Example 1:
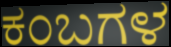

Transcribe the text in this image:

ಕಂಬಗಳ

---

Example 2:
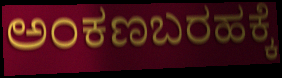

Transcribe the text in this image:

ಅಂಕಣಬರಹಕ್ಕೆ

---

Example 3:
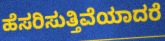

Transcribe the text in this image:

ಹೆಸರಿಸುತ್ತಿವೆಯಾದರೆ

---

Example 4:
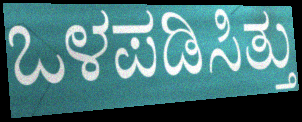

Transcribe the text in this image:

ಒಳಪಡಿಸಿತ್ತು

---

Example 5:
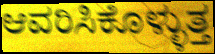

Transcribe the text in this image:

ಆವರಿಸಿಕೊಳ್ಳುತ್ತ